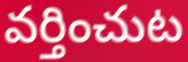
వర్తించుట